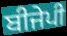
ਬੀਜੇਪੀ